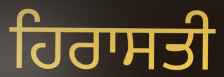
ਹਿਰਾਸਤੀ